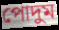
পোদুম